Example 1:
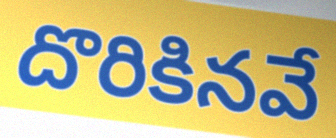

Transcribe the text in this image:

దొరికినవే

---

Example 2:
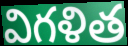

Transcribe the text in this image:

విగళిత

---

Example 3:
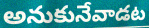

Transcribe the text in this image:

అనుకునేవాడట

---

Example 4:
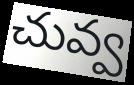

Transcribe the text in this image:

చువ్వ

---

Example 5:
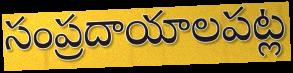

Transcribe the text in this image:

సంప్రదాయాలపట్ల